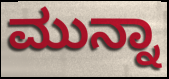
ಮುನ್ನಾ